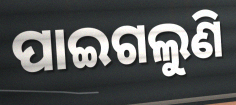
ପାଇଗଲୁଣି